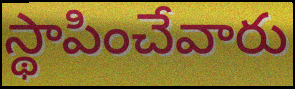
స్థాపించేవారు